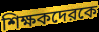
শিক্ষকদেরকে